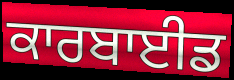
ਕਾਰਬਾਈਡ